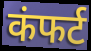
कंफर्ट